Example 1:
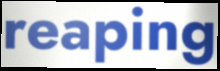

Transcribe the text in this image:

reaping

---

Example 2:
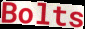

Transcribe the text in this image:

Bolts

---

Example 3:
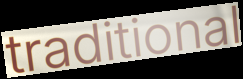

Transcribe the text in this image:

traditional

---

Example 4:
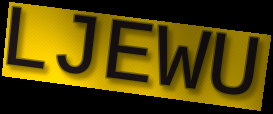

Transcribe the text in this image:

LJEWU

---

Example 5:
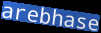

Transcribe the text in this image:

arebhase